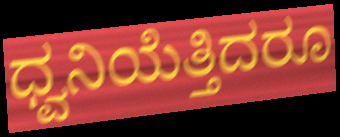
ಧ್ವನಿಯೆತ್ತಿದರೂ